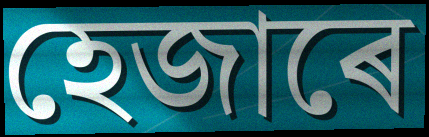
হেজাৰে